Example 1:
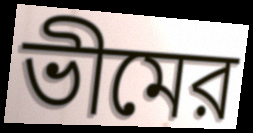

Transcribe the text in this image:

ভীমের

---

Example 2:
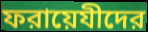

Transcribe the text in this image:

ফরায়েযীদের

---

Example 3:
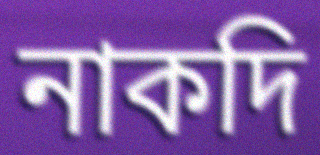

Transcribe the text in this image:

নাকদি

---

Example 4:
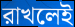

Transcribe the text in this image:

রাখলেই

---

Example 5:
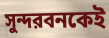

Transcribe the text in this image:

সুন্দরবনকেই